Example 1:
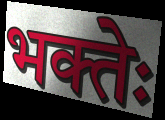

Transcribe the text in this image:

भक्तेः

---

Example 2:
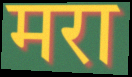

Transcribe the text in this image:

मरा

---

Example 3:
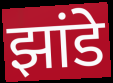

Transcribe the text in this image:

झांडे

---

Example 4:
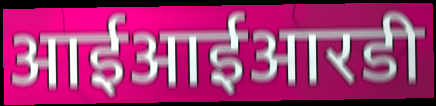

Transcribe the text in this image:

आईआईआरडी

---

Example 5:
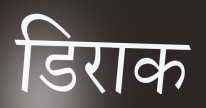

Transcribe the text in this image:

डिराक